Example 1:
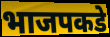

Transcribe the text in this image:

भाजपकडे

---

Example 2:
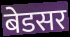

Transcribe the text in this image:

बेडसर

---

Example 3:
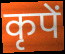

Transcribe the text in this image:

कृपें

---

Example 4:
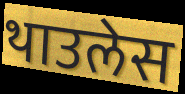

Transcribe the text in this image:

थाउलेस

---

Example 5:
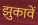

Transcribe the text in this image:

झुकावें